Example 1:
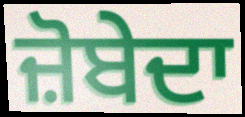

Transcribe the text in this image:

ਜ਼ੋਬੇਦਾ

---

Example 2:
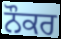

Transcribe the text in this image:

ਨੌਕਰ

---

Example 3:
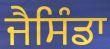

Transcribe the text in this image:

ਜੈਸਿੰਡਾ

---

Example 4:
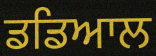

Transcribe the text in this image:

ਡਡਿਆਲ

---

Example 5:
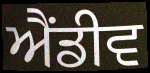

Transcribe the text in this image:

ਐਂਡੀਵ